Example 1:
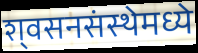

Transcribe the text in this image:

श्वसनसंस्थेमध्ये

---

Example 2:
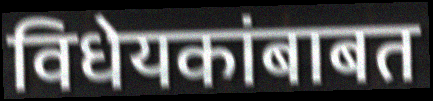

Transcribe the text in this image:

विधेयकांबाबत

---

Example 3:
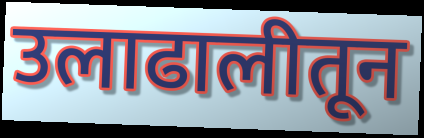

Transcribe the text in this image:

उलाढालीतून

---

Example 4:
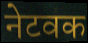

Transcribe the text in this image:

नेटवक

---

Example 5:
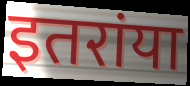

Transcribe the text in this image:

इतरांया